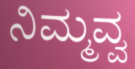
ನಿಮ್ಮವ್ವ